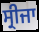
ਸ੍ਰੀਜਾ